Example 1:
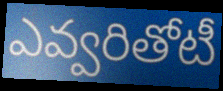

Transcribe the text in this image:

ఎవ్వరితోటీ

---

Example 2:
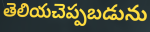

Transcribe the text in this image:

తెలియచెప్పబడును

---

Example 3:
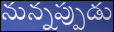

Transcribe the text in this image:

నున్నప్పుడు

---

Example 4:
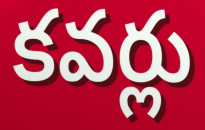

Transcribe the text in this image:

కవర్లు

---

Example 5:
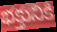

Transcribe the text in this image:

భక్తునికి